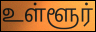
உள்ளூர்